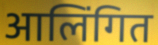
आलिंगित